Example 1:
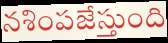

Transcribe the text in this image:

నశింపజేస్తుంది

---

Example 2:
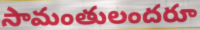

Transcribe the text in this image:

సామంతులందరూ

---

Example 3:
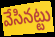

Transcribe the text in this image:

వేసినట్టు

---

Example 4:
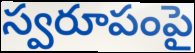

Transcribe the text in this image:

స్వరూపంపై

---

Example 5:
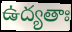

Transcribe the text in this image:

ఉద్యతాః